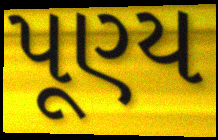
પૂણ્ય